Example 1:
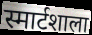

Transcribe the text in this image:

स्मार्टशाला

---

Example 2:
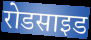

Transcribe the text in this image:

रोडसाइड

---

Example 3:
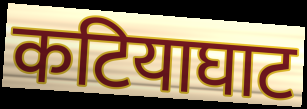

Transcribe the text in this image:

कटियाघाट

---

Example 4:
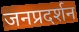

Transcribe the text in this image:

जनप्रदर्शन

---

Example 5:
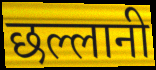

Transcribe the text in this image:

छल्लानी